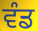
ਵੰਡ